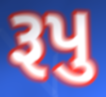
રૂપુ